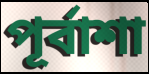
পূর্বাশা